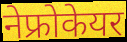
नेफ्रोकेयर